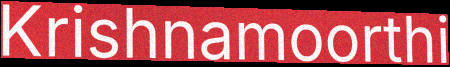
Krishnamoorthi